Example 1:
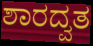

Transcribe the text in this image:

ಶಾರದ್ವತ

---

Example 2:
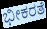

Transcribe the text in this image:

ಭೀಕರತೆ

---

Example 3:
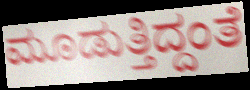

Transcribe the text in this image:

ಮೂಡುತ್ತಿದ್ದಂತೆ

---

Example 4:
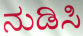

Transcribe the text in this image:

ನುಡಿಸಿ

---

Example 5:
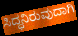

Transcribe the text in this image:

ಸಿದ್ಧನಿರುವುದಾಗಿ